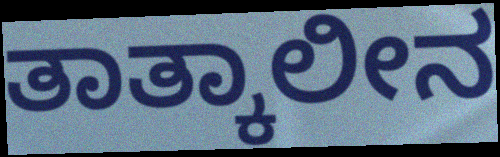
ತಾತ್ಕಾಲೀನ